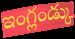
ఇంగ్లండ్కు